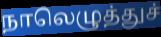
நாலெழுத்துச்